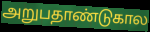
அறுபதாண்டுகால